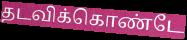
தடவிக்கொண்டே